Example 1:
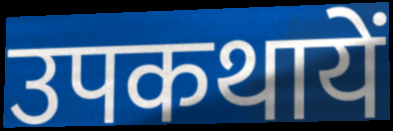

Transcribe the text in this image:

उपकथायें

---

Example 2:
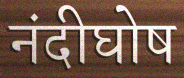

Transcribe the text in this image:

नंदीघोष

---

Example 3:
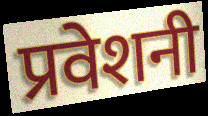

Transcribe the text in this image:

प्रवेशनी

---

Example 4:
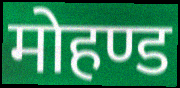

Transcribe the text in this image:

मोहण्ड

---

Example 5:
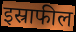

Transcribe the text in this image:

इस्राफील